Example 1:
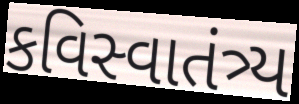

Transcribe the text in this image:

કવિસ્વાતંત્ર્ય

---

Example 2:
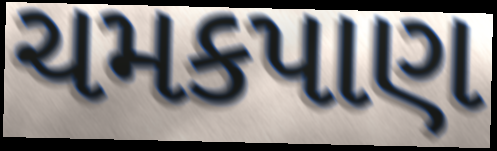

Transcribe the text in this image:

ચમકપાણ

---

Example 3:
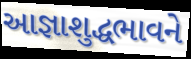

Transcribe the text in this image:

આજ્ઞાશુદ્ધભાવને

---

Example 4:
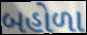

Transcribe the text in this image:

બહોળા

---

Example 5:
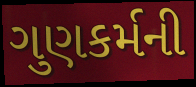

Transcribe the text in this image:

ગુણકર્મની